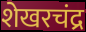
शेखरचंद्र